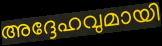
അദ്ദേഹവുമായി